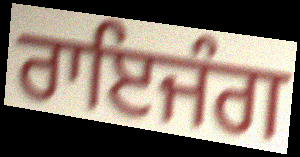
ਰਾਇਜੰਗ